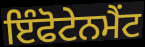
ਇੰਫੋਟੇਨਮੈਂਟ